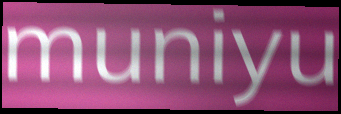
muniyu